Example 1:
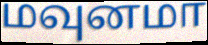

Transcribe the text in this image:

மவுனமா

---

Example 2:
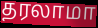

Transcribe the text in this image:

தரலாமா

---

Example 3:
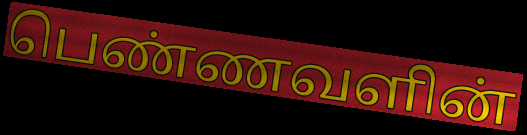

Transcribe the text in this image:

பெண்ணவளின்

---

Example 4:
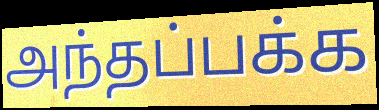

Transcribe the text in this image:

அந்தப்பக்க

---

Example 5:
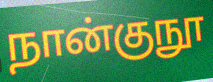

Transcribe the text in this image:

நான்குநூ